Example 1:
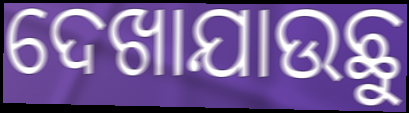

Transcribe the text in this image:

ଦେଖାଯାଉଛୁ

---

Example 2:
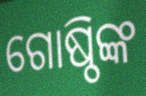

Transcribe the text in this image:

ଗୋଷ୍ଠିଙ୍କ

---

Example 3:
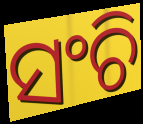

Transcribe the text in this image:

ସଂଚି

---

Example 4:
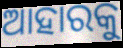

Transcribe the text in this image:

ଆହାରକୁ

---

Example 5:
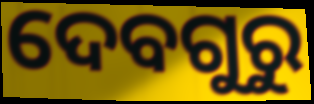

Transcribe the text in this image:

ଦେବଗୁରୁ